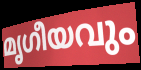
മൃഗീയവും